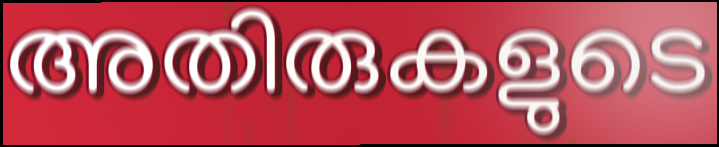
അതിരുകളുടെ